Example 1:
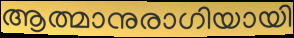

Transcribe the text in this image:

ആത്മാനുരാഗിയായി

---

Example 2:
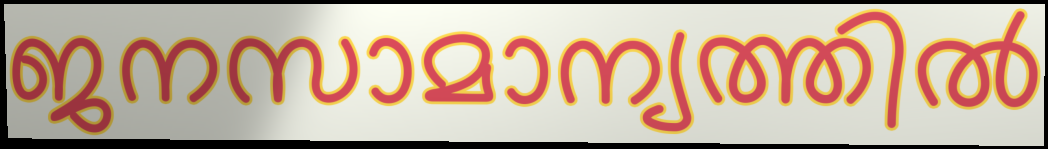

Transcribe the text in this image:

ജനസാമാന്യത്തിൽ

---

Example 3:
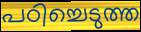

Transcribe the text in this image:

പഠിച്ചെടുത്ത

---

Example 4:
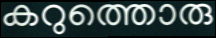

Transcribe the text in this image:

കറുത്തൊരു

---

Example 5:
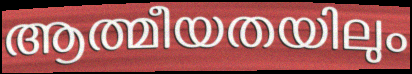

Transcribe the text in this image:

ആത്മീയതയിലും